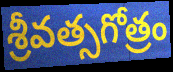
శ్రీవత్సగోత్రం